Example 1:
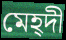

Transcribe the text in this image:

মেহ্দী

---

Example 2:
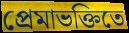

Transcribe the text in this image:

প্রেমাভক্তিতে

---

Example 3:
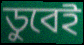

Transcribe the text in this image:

ডুবেই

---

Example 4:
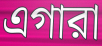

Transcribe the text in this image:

এগারা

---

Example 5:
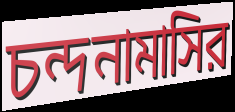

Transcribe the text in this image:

চন্দনামাসির